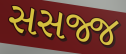
સસજ્જ